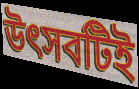
উৎসবটিই